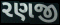
રણજી